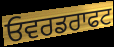
ਓਵਰਡਰਾਫਟ